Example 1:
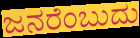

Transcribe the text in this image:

ಜನರೆಂಬುದು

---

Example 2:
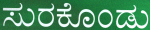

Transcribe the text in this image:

ಸುರಕೊಂಡು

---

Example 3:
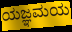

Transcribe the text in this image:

ಯಜ್ಞಮಯ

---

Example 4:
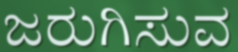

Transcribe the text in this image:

ಜರುಗಿಸುವ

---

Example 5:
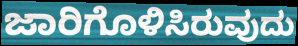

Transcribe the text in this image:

ಜಾರಿಗೊಳಿಸಿರುವುದು